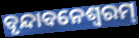
ବୃନ୍ଦାବନେଶ୍ୱରମ୍